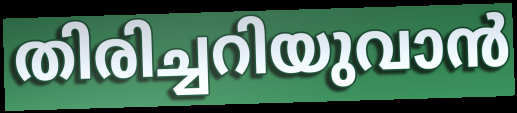
തിരിച്ചറിയുവാൻ